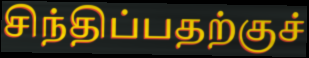
சிந்திப்பதற்குச்